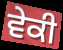
ਵੇਕੀ